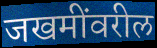
जखमींवरील